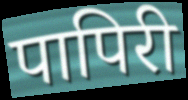
पापिरी